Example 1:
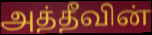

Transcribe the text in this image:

அத்தீவின்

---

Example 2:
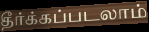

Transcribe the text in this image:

தீர்க்கப்படலாம்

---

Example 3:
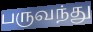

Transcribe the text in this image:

பருவந்து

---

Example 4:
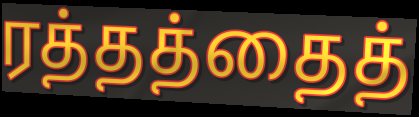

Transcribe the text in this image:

ரத்தத்தைத்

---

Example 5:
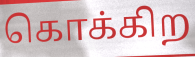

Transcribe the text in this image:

கொக்கிற